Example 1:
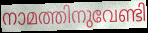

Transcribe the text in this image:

നാമത്തിനുവേണ്ടി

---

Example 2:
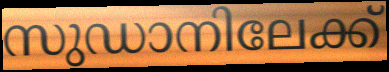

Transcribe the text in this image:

സുഡാനിലേക്ക്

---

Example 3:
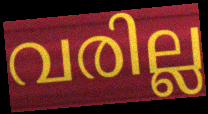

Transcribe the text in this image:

വരില്ല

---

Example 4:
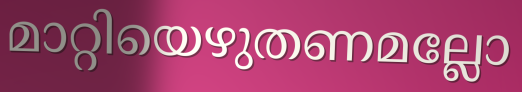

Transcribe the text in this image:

മാറ്റിയെഴുതണമല്ലോ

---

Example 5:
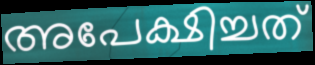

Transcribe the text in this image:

അപേക്ഷിച്ചത്